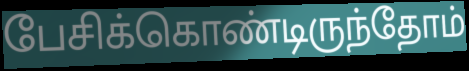
பேசிக்கொண்டிருந்தோம்